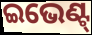
ଇଭେଣ୍ଟ୍